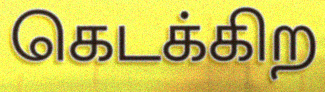
கெடக்கிற